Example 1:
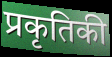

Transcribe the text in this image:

प्रकृतिकी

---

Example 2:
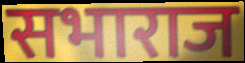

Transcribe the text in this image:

सभाराज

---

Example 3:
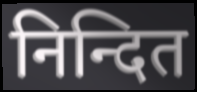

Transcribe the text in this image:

निन्दित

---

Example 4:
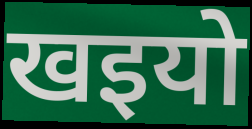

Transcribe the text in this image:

खइयो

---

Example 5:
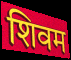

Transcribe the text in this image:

शिवम